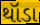
થૉડા